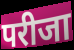
परीजा